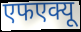
एफएक्यू